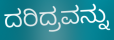
ದರಿದ್ರವನ್ನು